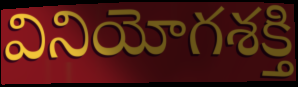
వినియోగశక్తి